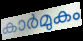
കാർമുകം